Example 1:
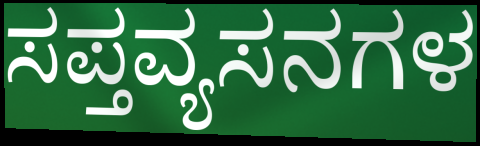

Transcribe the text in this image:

ಸಪ್ತವ್ಯಸನಗಳ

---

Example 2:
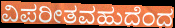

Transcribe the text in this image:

ವಿಪರೀತವಹುದೆಂದ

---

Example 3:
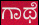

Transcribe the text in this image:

ಗಾಥೆ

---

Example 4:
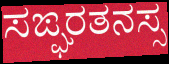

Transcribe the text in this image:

ಸಙ್ಘರತನಸ್ಸ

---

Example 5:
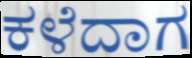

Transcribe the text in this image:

ಕಳೆದಾಗ